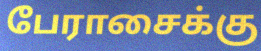
பேராசைக்கு